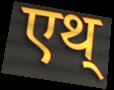
एथ्